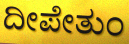
ದೀಪೇತುಂ